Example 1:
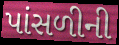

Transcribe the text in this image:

પાંસળીની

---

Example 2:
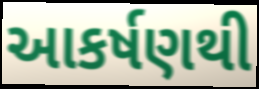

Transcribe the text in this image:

આકર્ષણથી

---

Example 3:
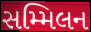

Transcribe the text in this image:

સમ્મિલન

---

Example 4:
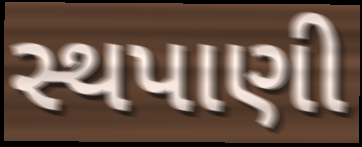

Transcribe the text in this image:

સ્થપાણી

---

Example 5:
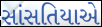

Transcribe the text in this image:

સાંસતિયાએ